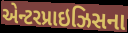
એન્ટરપ્રાઇઝિસના